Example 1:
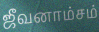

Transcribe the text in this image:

ஜீவனாம்சம்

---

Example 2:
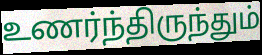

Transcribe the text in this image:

உணர்ந்திருந்தும்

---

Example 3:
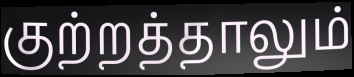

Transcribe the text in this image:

குற்றத்தாலும்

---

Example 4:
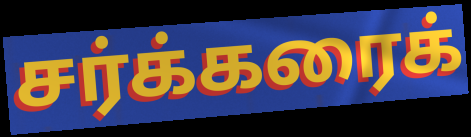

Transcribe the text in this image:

சர்க்கரைக்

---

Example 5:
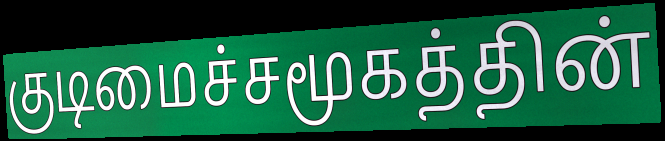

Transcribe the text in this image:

குடிமைச்சமூகத்தின்